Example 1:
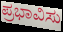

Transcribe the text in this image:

ಪ್ರಭಾವಿಸು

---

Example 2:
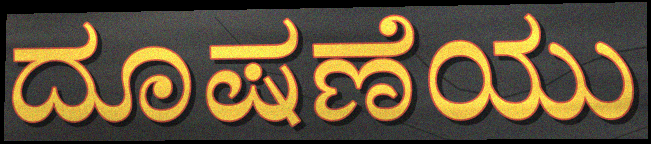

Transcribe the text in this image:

ದೂಷಣೆಯು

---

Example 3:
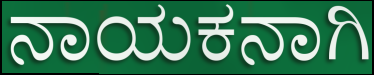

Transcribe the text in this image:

ನಾಯಕನಾಗಿ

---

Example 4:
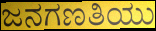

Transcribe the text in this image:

ಜನಗಣತಿಯು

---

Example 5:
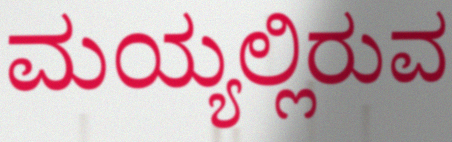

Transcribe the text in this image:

ಮಯ್ಯಲ್ಲಿರುವ